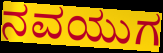
ನವಯುಗ